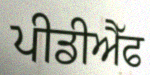
ਪੀਡੀਐੱਫ